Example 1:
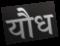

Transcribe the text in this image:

यौध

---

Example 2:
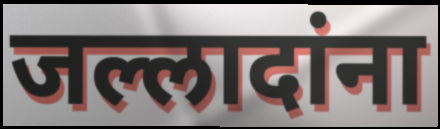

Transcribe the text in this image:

जल्लादांना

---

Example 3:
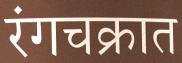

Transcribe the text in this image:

रंगचक्रात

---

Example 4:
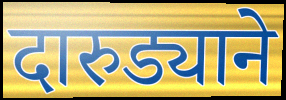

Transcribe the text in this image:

दारुड्याने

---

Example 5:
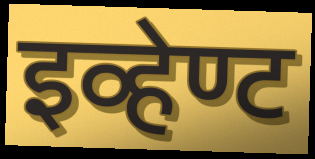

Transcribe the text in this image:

इव्हेण्ट